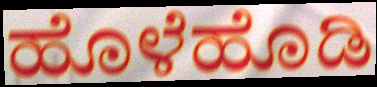
ಹೊಳೆಹೊಡಿ